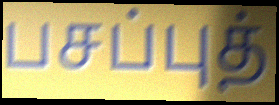
பசப்புத்